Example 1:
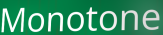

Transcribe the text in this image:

Monotone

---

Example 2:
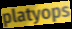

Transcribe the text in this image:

platyops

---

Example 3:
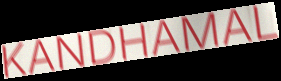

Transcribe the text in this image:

KANDHAMAL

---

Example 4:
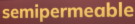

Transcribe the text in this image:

semipermeable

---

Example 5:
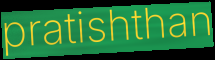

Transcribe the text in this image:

pratishthan